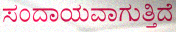
ಸಂದಾಯವಾಗುತ್ತಿದೆ